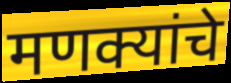
मणक्यांचे